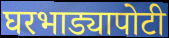
घरभाड्यापोटी